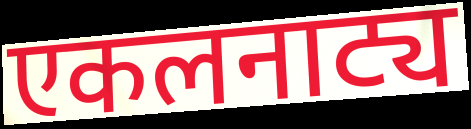
एकलनाट्य